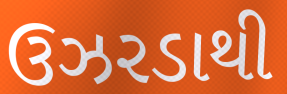
ઉઝરડાથી